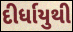
દીર્ધાયુથી